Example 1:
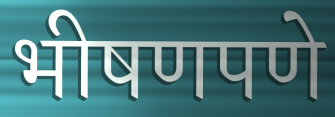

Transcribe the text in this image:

भीषणपणे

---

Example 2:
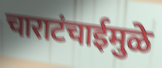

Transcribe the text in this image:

चाराटंचाईमुळे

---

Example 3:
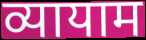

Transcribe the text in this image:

व्यायाम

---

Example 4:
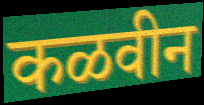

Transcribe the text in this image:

कळवीन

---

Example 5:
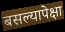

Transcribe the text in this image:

बसल्यापेक्षा